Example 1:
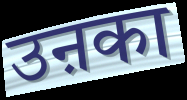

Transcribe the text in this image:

उऩका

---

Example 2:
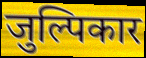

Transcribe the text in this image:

जुल्पिकार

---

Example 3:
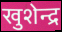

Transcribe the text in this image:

खुशेन्द्र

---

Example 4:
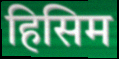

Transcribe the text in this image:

हिसिम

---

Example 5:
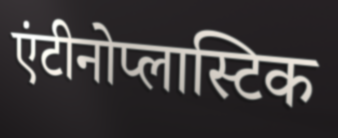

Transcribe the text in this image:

एंटीनोप्लास्टिक